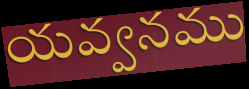
యవ్వనము